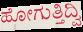
ಹೋಗುತ್ತಿದ್ವಿ